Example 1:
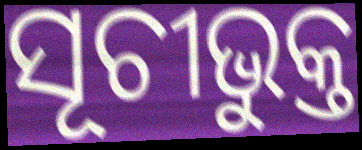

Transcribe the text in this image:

ସୂଚୀଭୁକ୍ତ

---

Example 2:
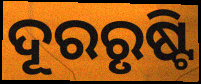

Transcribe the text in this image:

ଦୂରରୃଷ୍ଟି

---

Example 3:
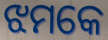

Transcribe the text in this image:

ଝମକେ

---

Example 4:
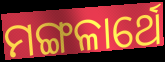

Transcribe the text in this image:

ମଙ୍ଗଳାର୍ଥେ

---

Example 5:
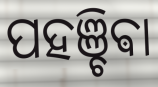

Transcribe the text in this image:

ପହଞ୍ଚିଵା